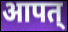
आपत्